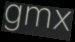
gmx